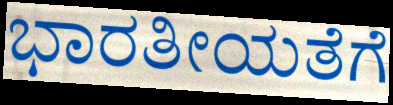
ಭಾರತೀಯತೆಗೆ